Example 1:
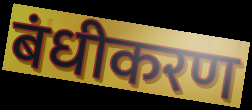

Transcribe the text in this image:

बंधीकरण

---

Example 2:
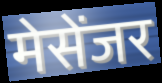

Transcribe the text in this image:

मेसेंजर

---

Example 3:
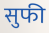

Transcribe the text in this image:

सुफी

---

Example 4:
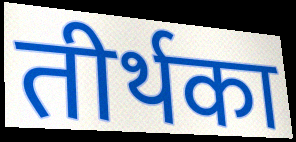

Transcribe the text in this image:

तीर्थका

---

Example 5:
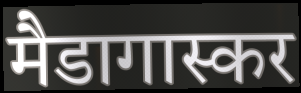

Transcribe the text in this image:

मैडागास्कर